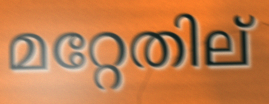
മറ്റേതില്